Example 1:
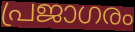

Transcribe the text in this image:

പ്രജാഗരം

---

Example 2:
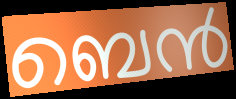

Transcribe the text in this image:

ബെൻ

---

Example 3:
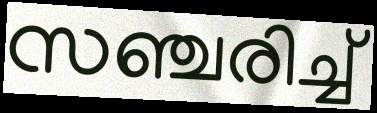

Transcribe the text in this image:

സഞ്ചരിച്ച്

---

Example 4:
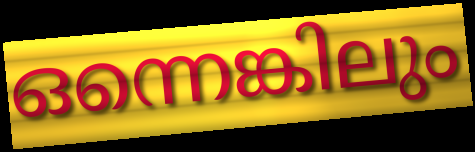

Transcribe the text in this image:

ഒന്നെങ്കിലും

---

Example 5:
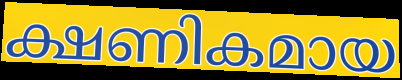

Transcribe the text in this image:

ക്ഷണികമായ